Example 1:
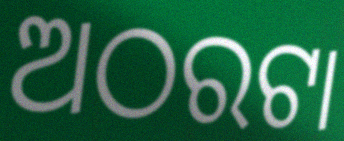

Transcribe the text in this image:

ଅଠରଟା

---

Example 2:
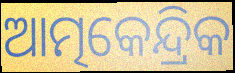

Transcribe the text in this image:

ଆତ୍ମକେନ୍ଦ୍ରିକ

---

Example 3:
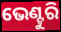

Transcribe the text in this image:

ଭେଣ୍ଟୁରି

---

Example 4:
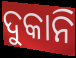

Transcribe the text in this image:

ଦୁକାନି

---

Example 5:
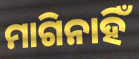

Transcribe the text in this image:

ମାଗିନାହିଁ